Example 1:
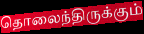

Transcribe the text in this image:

தொலைந்திருக்கும்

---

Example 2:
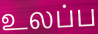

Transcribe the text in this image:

உலப்ப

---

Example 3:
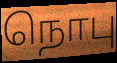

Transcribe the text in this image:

நொபு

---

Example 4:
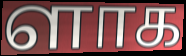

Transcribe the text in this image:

ளாக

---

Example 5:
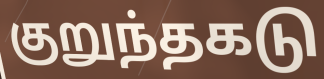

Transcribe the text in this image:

குறுந்தகடு